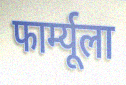
फार्म्यूला